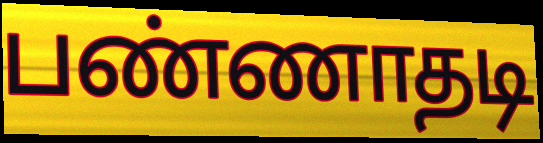
பண்ணாதடி